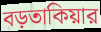
বড়তাকিয়ার